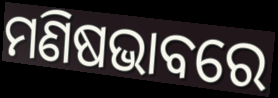
ମଣିଷଭାବରେ